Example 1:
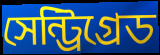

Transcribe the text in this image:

সেন্ট্রিগ্রেড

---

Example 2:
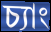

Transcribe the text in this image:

চ্যাং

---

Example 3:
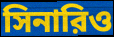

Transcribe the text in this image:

সিনারিও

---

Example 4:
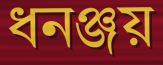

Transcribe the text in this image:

ধনঞ্জয়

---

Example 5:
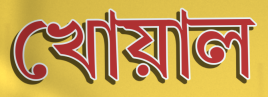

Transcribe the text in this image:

খোয়াল